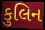
કુલિન